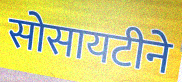
सोसायटीने